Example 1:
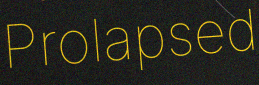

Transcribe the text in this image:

Prolapsed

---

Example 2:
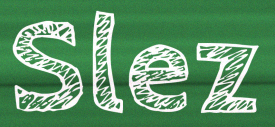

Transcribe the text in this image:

Slez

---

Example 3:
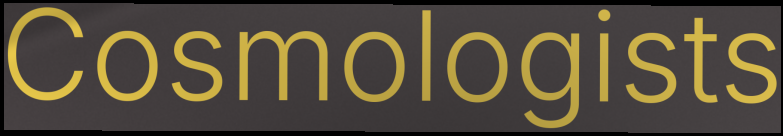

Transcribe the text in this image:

Cosmologists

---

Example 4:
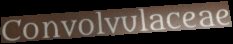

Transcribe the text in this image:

Convolvulaceae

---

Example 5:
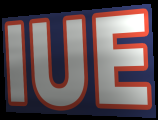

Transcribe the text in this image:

IUE